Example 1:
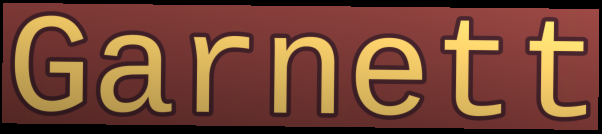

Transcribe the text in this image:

Garnett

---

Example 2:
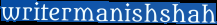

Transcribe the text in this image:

writermanishshah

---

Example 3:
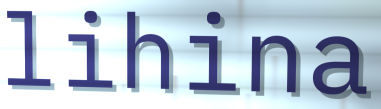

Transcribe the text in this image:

lihina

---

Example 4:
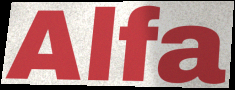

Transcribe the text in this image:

Alfa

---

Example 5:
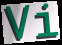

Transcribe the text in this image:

Vi